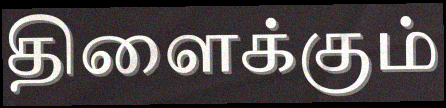
திளைக்கும்